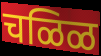
चळिळ